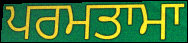
ਪਰਮਤਾਮਾ